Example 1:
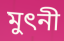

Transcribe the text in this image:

মুৎনী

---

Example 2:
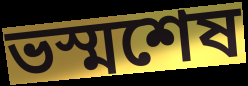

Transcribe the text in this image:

ভস্মশেষ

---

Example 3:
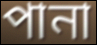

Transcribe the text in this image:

পানা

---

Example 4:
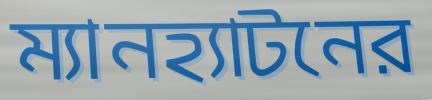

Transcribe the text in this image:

ম্যানহ্যাটনের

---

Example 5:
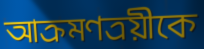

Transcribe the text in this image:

আক্রমণত্রয়ীকে